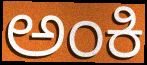
ಅಂಕಿ